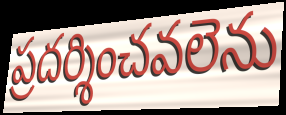
ప్రదర్శించవలెను